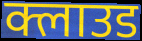
क्लाउड